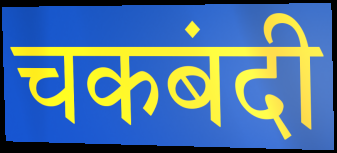
चकबंदी